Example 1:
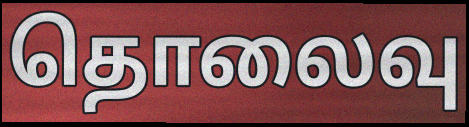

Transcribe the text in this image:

தொலைவு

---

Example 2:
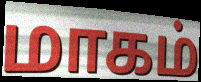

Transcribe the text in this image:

மாகம்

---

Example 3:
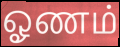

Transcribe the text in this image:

ஓணம்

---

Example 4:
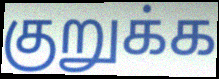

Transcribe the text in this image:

குறுக்க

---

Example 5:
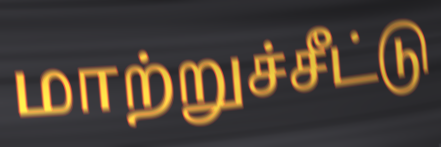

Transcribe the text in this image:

மாற்றுச்சீட்டு